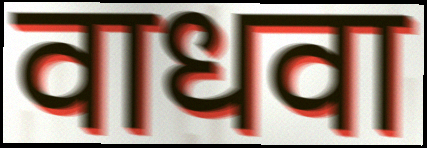
वाधवा